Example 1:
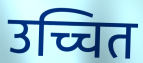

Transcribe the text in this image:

उच्चित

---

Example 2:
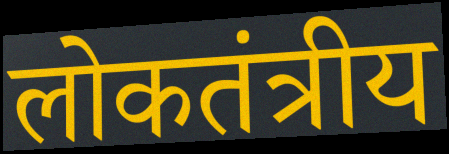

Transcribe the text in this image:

लोकतंत्रीय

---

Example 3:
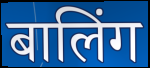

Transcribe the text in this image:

बालिंग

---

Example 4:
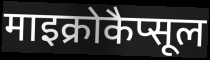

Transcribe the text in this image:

माइक्रोकैप्सूल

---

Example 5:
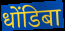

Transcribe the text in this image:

धोंडिबा